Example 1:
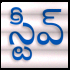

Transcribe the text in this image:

స్టీవ్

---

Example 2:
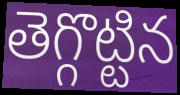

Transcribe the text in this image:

తెగ్గొట్టిన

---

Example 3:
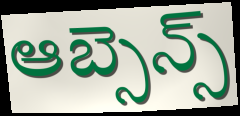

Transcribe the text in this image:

ఆబ్సెన్స్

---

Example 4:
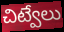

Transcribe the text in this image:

చిట్వేలు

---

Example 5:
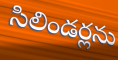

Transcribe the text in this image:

సిలిండర్లను